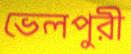
ভেলপুরী